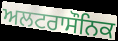
ਅਲਟਰਾਸੌਨਿਕ